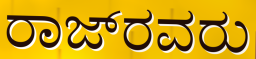
ರಾಜ್‌ರವರು